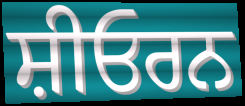
ਸ਼ੀਓਰਨ